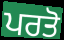
ਪਰਤੋ